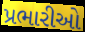
પ્રભારીઓ